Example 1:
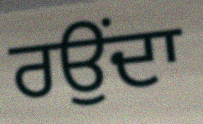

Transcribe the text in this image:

ਰਉਂਦਾ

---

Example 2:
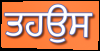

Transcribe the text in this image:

ਤਹਉਸ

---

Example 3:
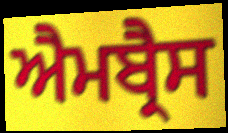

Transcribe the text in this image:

ਐਮਬ੍ਰੈਸ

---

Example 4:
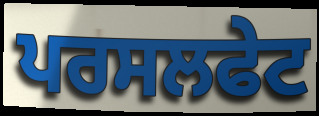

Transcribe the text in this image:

ਪਰਸਲਫੇਟ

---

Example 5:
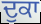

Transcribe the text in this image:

ਦੁਕਾ